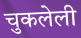
चुकलेली